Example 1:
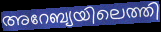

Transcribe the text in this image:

അറേബ്യയിലെത്തി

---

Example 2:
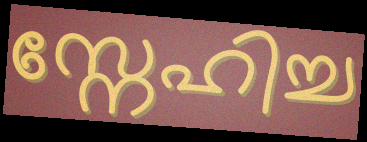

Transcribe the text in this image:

സ്നേഹിച്ച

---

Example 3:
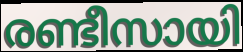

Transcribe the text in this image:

രണ്ടീസായി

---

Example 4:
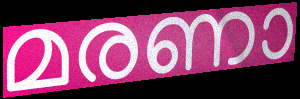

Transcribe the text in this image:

മരണാ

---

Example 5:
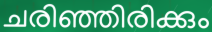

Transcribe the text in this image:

ചരിഞ്ഞിരിക്കും